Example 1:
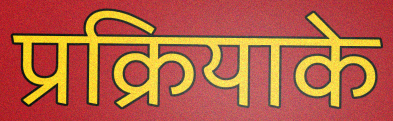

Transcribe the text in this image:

प्रक्रियाके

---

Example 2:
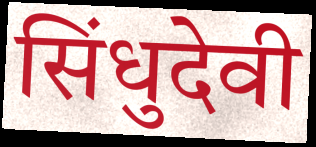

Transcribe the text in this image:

सिंधुदेवी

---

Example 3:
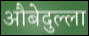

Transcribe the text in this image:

औबेदुल्ला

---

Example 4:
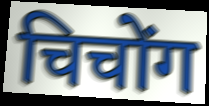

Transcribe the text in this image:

चिचोंग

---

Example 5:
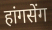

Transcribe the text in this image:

हांगसेंग